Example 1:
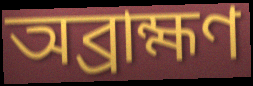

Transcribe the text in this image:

অব্রাহ্মণ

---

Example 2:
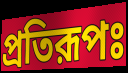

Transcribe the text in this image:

প্রতিরূপঃ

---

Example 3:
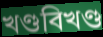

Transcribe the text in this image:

খণ্ডবিখণ্ড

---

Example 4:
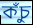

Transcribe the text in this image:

কঁচু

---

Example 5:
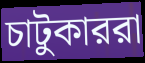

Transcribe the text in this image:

চাটুকাররা